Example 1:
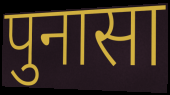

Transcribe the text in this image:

पुनासा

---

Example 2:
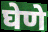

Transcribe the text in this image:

घेणे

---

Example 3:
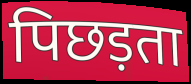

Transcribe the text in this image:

पिछड़ता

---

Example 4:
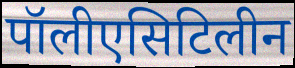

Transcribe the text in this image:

पॉलीएसिटिलीन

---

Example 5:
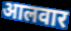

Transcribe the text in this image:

आलवार